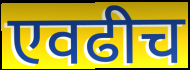
एवढीच